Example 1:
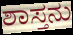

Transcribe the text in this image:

ಶಾಸ್ತನು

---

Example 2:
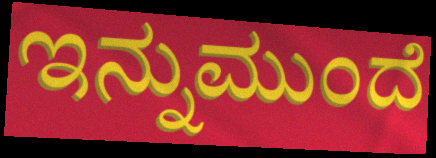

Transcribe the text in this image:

ಇನ್ನುಮುಂದೆ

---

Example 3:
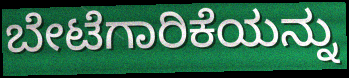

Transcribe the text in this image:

ಬೇಟೆಗಾರಿಕೆಯನ್ನು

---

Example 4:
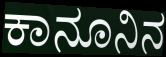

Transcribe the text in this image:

ಕಾನೂನಿನ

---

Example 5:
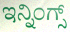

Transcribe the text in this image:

ಇನ್ನಿಂಗ್ಸ್